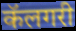
कॅलगरी